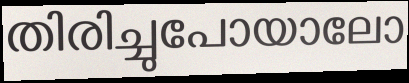
തിരിച്ചുപോയാലോ